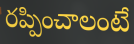
రప్పించాలంటే